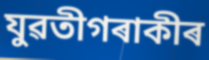
যুৱতীগৰাকীৰ